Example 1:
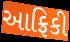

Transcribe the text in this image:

આફ્રિકી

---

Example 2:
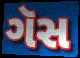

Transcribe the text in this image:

ગૅસ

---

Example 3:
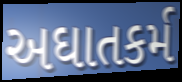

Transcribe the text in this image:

અઘાતકર્મ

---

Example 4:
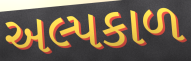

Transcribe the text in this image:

અલ્પકાળ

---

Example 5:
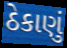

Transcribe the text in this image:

ઠેકાણું